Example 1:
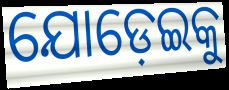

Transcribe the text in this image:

ଯୋଡ଼େଇକୁ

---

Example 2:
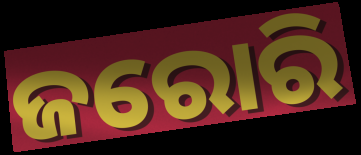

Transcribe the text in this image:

ଜରୋରି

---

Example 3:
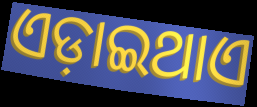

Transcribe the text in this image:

ଏଡ଼ାଇଥାଏ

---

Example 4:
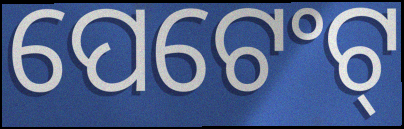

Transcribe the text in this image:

ପେଟେଂଟ୍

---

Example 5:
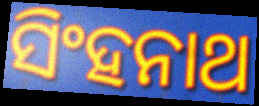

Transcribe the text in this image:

ସିଂହନାଥ